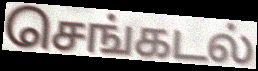
செங்கடல்